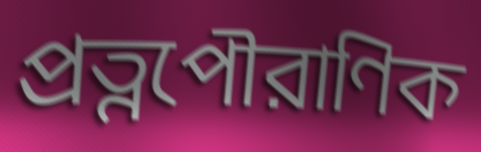
প্রত্নপৌরাণিক